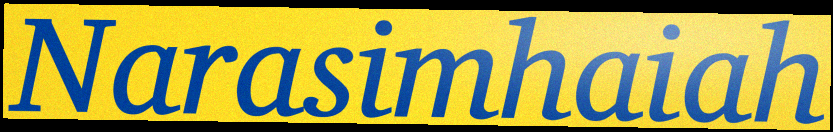
Narasimhaiah